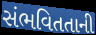
સંભવિતતાની